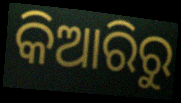
କିଆରିରୁ